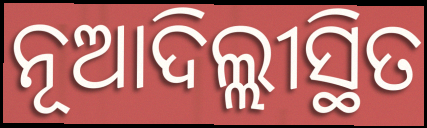
ନୂଆଦିଲ୍ଲୀସ୍ଥିତ